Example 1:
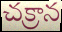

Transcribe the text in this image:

చక్రాన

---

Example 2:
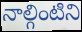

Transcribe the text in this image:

నాల్గింటిని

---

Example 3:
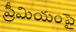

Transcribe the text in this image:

ప్రీమియంపై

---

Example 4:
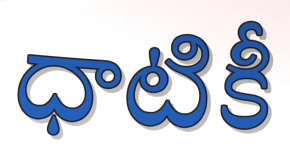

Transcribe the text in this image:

ధాటికీ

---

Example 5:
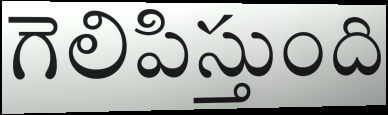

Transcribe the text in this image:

గెలిపిస్తుంది